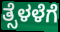
ತ್ಸೆಳಳೆಗೆ